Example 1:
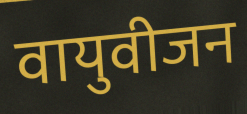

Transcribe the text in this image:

वायुवीजन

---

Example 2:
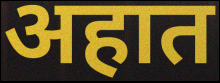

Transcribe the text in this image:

अहात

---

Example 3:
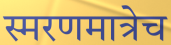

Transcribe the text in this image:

स्मरणमात्रेच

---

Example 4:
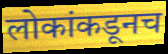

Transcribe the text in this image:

लोकांकडूनच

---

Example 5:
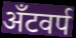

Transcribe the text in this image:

अँटवर्प